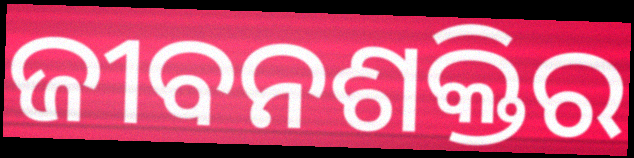
ଜୀବନଶକ୍ତିର